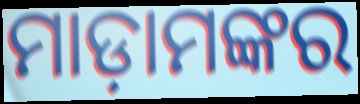
ମାଡ଼ାମଙ୍କର